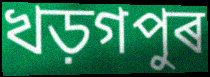
খড়গপুৰ